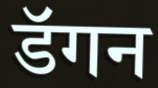
डॅगन